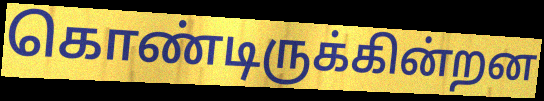
கொண்டிருக்கின்றன